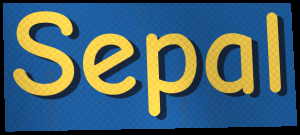
Sepal